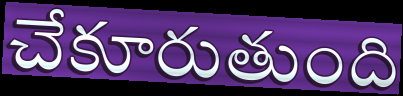
చేకూరుతుంది